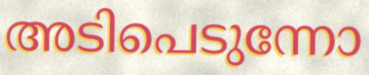
അടിപെടുന്നോ